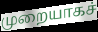
முறையாகச்